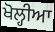
ਖੋਲ੍ਹੀਆ